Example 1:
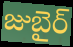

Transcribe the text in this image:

జుబైర్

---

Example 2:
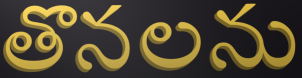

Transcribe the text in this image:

తొనలను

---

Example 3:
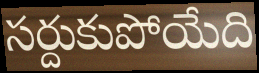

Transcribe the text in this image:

సర్దుకుపోయేది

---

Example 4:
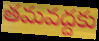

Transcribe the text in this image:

తమవద్దకు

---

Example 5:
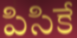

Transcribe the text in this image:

పిసికే